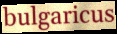
bulgaricus